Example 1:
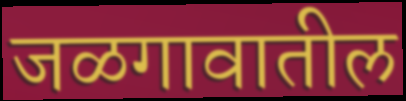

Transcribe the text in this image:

जळगावातील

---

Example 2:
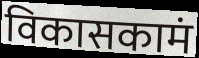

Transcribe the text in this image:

विकासकामं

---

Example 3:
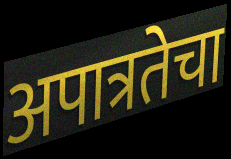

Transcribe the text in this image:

अपात्रतेचा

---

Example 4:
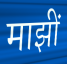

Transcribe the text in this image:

माझीं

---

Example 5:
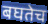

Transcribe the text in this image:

बघतेच